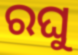
ରଘୁ